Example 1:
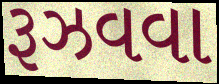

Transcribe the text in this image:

રૂઝવવા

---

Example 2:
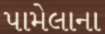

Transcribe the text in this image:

પામેલાના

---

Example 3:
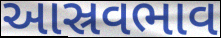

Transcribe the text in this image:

આસ્રવભાવ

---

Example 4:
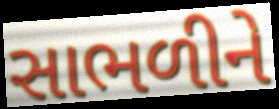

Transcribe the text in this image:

સાભળીને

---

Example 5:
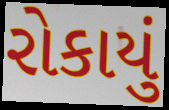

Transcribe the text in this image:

રોકાયું